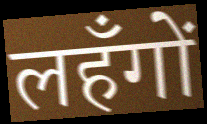
लहँगों